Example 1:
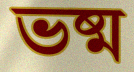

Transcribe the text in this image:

ভষ্ম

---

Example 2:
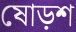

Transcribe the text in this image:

ষোড়শ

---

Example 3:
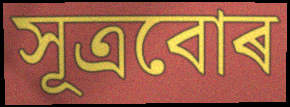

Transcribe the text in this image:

সূত্ৰবোৰ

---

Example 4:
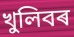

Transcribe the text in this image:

খুলিবৰ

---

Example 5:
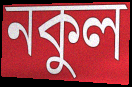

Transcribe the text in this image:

নকুল